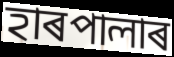
হাৰপালাৰ